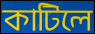
কাটিলে